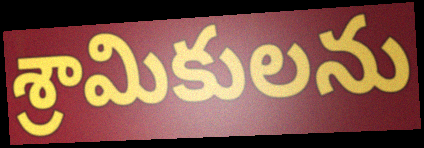
శ్రామికులను